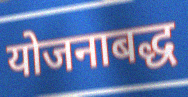
योजनाबद्ध